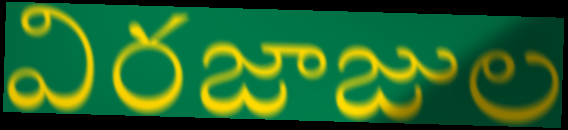
విరజాజుల